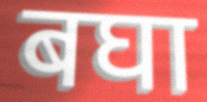
बघा